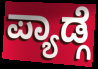
ಪ್ಯಾಡ್ಗೆ